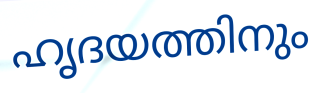
ഹൃദയത്തിനും